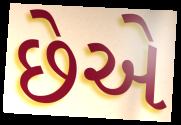
છેએ